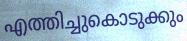
എത്തിച്ചുകൊടുക്കും